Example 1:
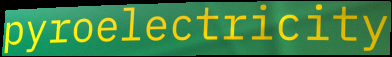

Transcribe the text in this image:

pyroelectricity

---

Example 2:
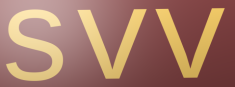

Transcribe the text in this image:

svv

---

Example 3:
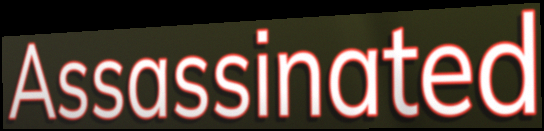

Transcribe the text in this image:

Assassinated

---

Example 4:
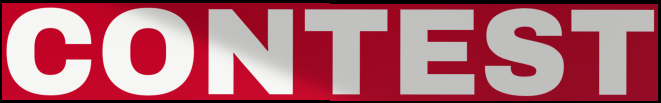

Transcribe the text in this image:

CONTEST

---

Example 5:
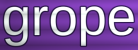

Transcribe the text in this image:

grope